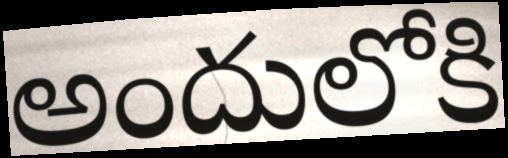
అందులోకి